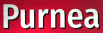
Purnea